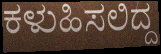
ಕಳುಹಿಸಲಿದ್ದ